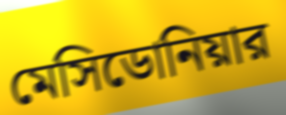
মেসিডোনিয়ার